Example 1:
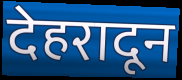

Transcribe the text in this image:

देहरादून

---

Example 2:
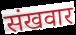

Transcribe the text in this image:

संखवार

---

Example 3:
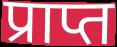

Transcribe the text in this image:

प्राप्‍त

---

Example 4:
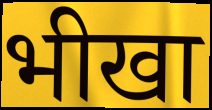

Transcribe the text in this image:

भीखा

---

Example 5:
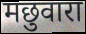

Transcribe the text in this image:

मछुवारा